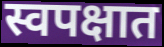
स्वपक्षात